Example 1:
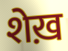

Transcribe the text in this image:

शेख़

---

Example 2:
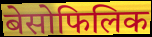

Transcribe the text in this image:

बेसोफिलिक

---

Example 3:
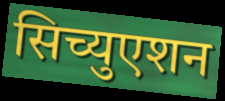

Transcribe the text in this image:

सिच्युएशन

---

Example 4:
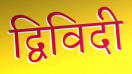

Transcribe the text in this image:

द्विविदी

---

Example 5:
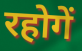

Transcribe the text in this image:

रहोगें